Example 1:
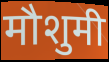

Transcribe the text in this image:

मौशुमी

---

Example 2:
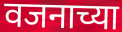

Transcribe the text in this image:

वजनाच्या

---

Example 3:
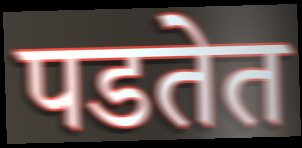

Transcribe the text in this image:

पडतेत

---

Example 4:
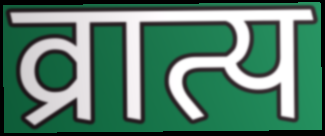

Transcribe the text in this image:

व्रात्य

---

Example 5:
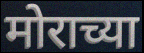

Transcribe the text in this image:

मोराच्या